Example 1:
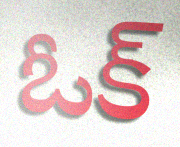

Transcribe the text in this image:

ఓక్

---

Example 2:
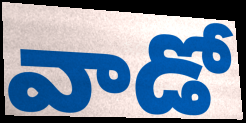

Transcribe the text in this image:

వాడో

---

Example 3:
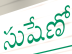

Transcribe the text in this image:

సుషేణో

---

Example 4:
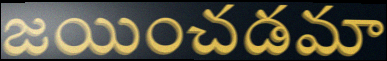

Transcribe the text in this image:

జయించడమా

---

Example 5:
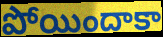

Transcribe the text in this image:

పోయిందాకా